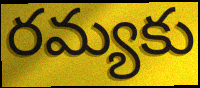
రమ్యకు